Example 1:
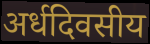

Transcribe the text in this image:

अर्धदिवसीय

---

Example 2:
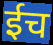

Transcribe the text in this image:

ईच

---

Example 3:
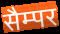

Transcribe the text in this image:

सैम्पर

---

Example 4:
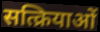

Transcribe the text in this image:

सत्क्रियाओं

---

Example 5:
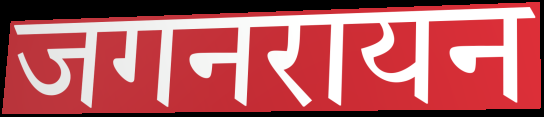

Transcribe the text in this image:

जगनरायन